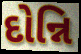
દોન્નિ